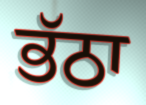
ਭੱਠਾ